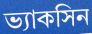
ভ্যাকসিন